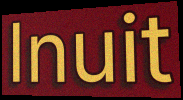
Inuit